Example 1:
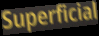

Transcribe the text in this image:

Superficial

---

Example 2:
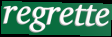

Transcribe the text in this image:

regrette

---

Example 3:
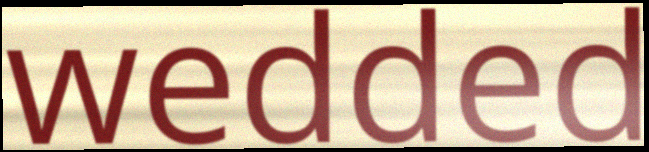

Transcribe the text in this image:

wedded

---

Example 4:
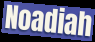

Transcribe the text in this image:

Noadiah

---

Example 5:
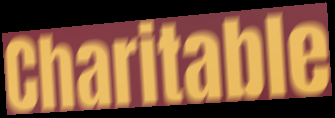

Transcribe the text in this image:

Charitable